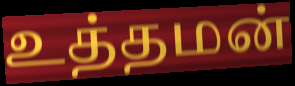
உத்தமன்